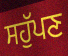
ਸਹੁੱਪਣ